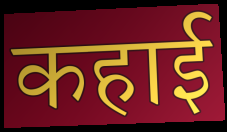
कहाई